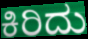
ಕಿರಿದು